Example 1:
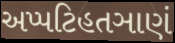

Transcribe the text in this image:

અપ્પટિહતઞાણં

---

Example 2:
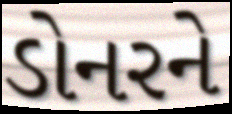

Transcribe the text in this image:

ડોનરને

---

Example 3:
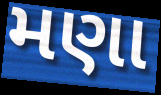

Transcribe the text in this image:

મણા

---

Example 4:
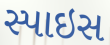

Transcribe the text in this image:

સ્પાઇસ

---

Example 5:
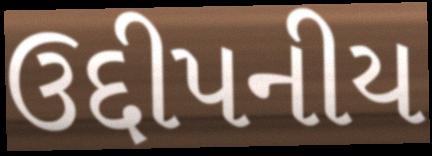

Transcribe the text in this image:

ઉદ્દીપનીય